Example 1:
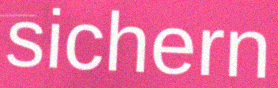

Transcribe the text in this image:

sichern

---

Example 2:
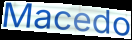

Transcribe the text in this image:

Macedo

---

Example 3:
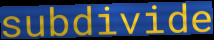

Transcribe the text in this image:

subdivide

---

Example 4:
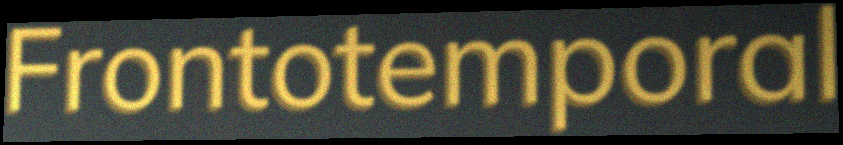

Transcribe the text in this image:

Frontotemporal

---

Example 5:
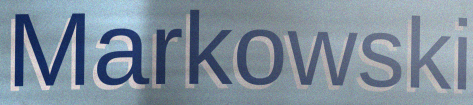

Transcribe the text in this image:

Markowski